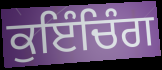
ਕੁਇੰਚਿੰਗ